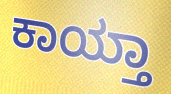
ಕಾಯ್ತಾ